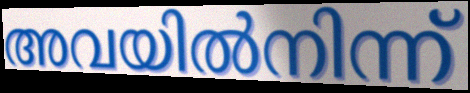
അവയിൽനിന്ന്